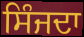
ਸਿੰਜਦਾ